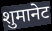
शुमानेट